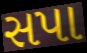
સપા